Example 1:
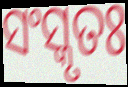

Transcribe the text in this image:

ସଂସ୍କୃତଃ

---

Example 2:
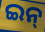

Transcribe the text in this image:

ଇନ୍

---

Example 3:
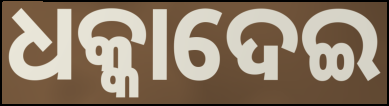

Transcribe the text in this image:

ଧକ୍କାଦେଇ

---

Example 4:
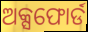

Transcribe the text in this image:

ଅକ୍ସଫୋର୍ଡ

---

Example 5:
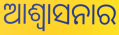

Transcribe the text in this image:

ଆଶ୍ୱାସନାର